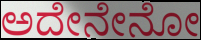
ಅದೇನೇನೋ